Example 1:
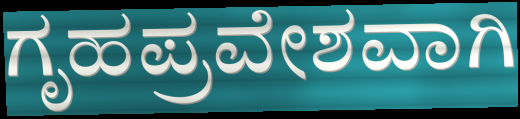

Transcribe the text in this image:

ಗೃಹಪ್ರವೇಶವಾಗಿ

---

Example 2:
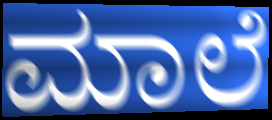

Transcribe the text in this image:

ಮಾಲೆ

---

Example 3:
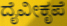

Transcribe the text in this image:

ದೈವೀಕೃಪೆ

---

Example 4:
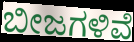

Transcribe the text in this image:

ಬೀಜಗಳಿವೆ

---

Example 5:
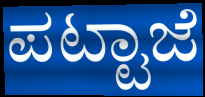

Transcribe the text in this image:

ಪಟ್ಟಾಜೆ